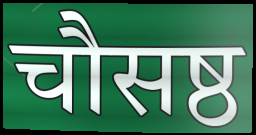
चौसष्ठ